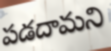
పడదామని